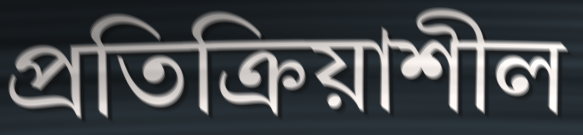
প্ৰতিক্ৰিয়াশীল